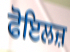
ਫੋਇਲਜ਼